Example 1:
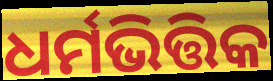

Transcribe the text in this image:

ଧର୍ମଭିତ୍ତିକ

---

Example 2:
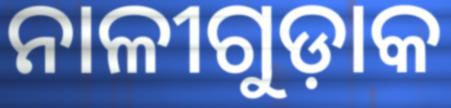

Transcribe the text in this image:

ନାଳୀଗୁଡ଼ାକ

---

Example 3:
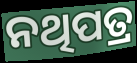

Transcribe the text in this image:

ନଥିପତ୍ର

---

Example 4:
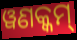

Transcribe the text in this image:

ୱଣକ୍କମ୍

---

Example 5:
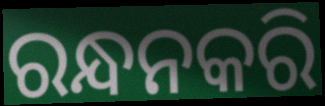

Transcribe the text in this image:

ରନ୍ଧନକରି